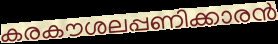
കരകൗശലപ്പണിക്കാരൻ